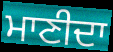
ਮਾਣੀਦਾ